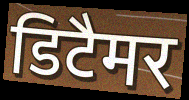
डिटैमर